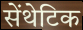
सेंथेटिक